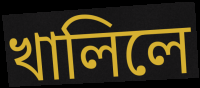
খালিলে